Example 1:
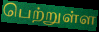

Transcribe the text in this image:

பெற்றுள்ள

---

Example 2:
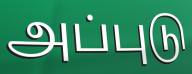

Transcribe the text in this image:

அப்புடு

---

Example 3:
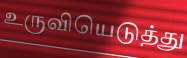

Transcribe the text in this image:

உருவியெடுத்து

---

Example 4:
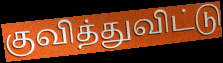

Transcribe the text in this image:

குவித்துவிட்டு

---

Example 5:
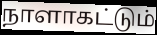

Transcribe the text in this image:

நாளாகட்டும்